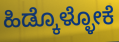
ಹಿಡ್ಕೊಳ್ಳೋಕೆ